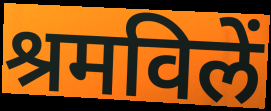
श्रमविलें